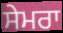
ਸੇਮਰਾ